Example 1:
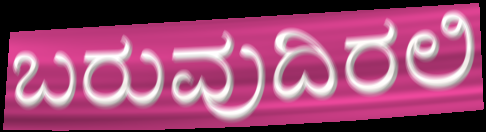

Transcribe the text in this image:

ಬರುವುದಿರಲಿ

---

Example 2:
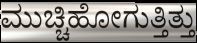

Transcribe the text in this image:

ಮುಚ್ಚಿಹೋಗುತ್ತಿತ್ತು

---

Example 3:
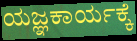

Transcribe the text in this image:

ಯಜ್ಞಕಾರ್ಯಕ್ಕೆ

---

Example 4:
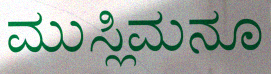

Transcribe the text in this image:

ಮುಸ್ಲಿಮನೂ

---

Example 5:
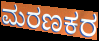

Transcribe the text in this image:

ಮರಣಕರ